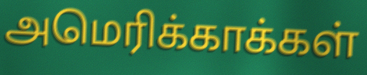
அமெரிக்காக்கள்